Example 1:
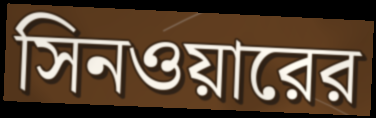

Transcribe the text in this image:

সিনওয়ারের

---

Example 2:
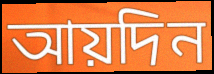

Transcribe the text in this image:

আয়দিন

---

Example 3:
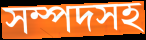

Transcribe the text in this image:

সম্পদসহ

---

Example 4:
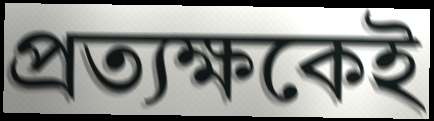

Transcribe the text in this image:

প্রত্যক্ষকেই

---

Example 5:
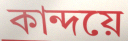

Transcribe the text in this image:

কান্দয়ে